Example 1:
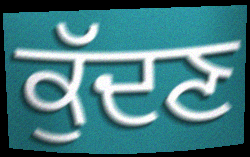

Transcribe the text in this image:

ਕੁੱਦਣ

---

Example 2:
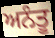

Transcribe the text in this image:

ਅਨੰਤੂ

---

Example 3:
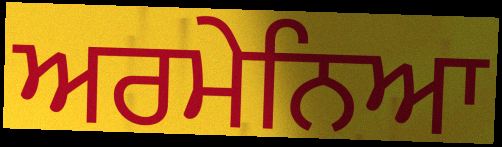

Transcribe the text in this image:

ਅਰਮੇਨਿਆ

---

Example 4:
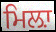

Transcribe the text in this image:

ਮਿਲ਼ਾ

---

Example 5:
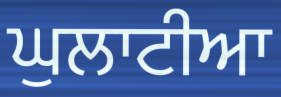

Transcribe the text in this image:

ਘੁਲਾਟੀਆ